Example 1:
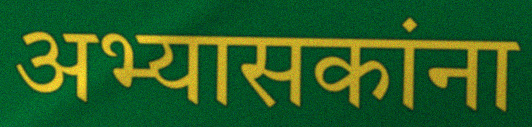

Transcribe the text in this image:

अभ्यासकांना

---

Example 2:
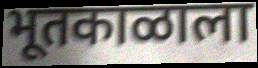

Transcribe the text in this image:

भूतकाळाला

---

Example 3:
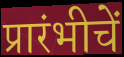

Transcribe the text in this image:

प्रारंभीचें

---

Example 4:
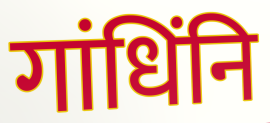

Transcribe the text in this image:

गांधिंनि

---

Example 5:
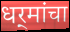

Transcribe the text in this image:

धर्मांचा